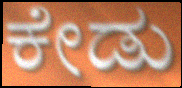
ಕೇಡು